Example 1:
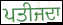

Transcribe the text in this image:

ਪਤੀਜਦਾ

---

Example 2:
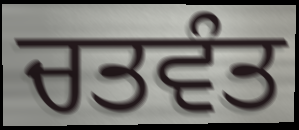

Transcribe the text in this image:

ਚਤਵੰਤ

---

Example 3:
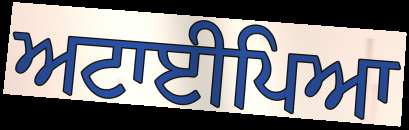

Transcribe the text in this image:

ਅਟਾਈਪਿਆ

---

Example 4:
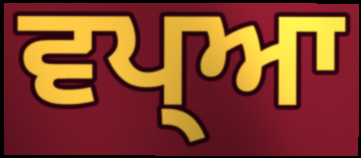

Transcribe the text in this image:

ਵਪ੍ਆ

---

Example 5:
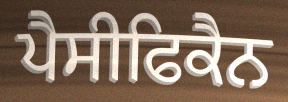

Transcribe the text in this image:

ਪੈਸੀਫਿਕੈਨ